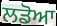
ਲਡੋਆ